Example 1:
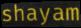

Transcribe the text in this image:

shayam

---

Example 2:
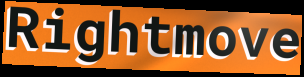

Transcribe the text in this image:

Rightmove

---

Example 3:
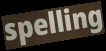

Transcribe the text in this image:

spelling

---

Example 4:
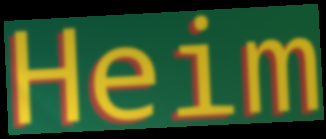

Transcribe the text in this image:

Heim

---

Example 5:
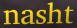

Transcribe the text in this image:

nasht